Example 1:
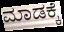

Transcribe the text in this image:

ಮಾಡಕ್ಕೆ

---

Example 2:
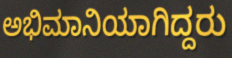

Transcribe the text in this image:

ಅಭಿಮಾನಿಯಾಗಿದ್ದರು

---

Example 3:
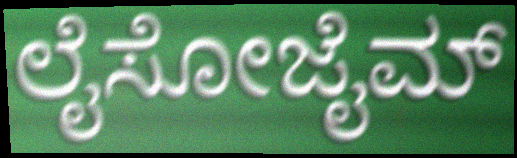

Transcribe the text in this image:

ಲೈಸೋಜೈಮ್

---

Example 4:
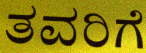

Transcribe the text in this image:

ತವರಿಗೆ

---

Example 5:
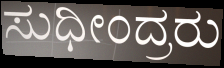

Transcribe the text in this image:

ಸುಧೀಂದ್ರರು